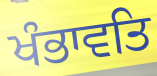
ਖੰਭਾਵਤਿ